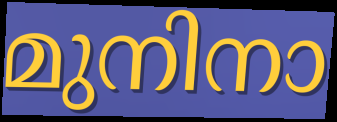
മുനിനാ